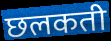
छलकती